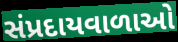
સંપ્રદાયવાળાઓ